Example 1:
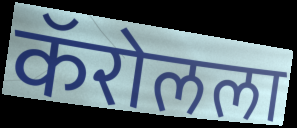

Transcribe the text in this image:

कॅरोलला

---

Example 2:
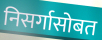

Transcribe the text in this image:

निसर्गासोबत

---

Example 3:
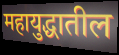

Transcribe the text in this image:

महायुद्धातील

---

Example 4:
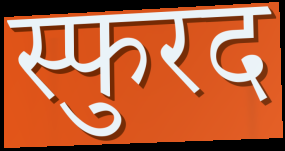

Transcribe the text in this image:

स्फुरद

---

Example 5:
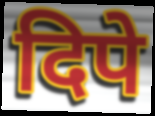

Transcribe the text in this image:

दिपे